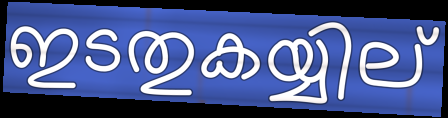
ഇടതുകയ്യില്